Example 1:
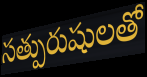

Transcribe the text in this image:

సత్పురుషులతో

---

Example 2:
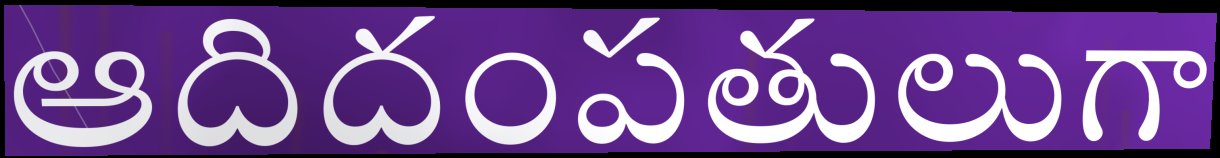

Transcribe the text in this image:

ఆదిదంపతులుగా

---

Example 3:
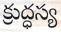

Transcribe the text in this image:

క్రుద్ధస్య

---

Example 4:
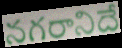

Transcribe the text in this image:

నగరానిదే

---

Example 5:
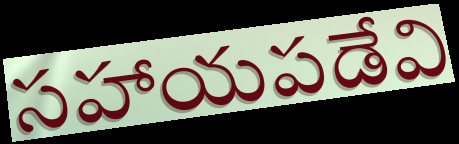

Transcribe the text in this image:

సహాయపడేవి